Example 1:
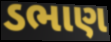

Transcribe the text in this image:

ડભાણ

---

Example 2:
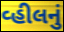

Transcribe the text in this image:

વ્હીલનું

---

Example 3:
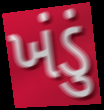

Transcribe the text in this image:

ખંડું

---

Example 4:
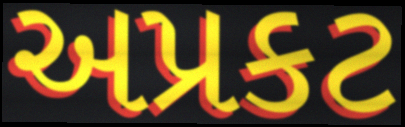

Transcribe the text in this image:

અપ્રકટ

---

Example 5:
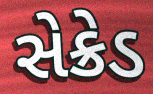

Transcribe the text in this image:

સેક્રેડ